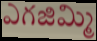
ఎగజిమ్మి